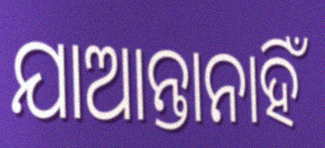
ଯାଆନ୍ତାନାହିଁ